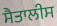
ਸੈਤਾਲੀਸ